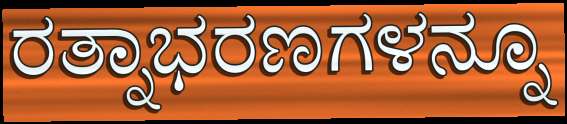
ರತ್ನಾಭರಣಗಳನ್ನೂ